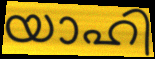
യാഹി